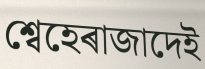
শ্বেহেৰাজাদেই